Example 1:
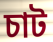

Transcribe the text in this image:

চাট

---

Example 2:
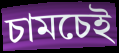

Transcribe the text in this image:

চামচেই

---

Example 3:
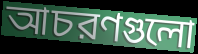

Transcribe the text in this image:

আচরণগুলো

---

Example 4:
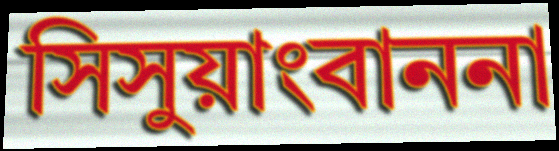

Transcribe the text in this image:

সিসুয়াংবাননা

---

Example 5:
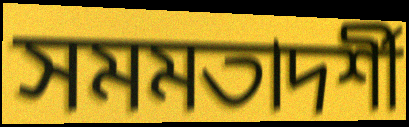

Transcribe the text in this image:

সমমতাদর্শী